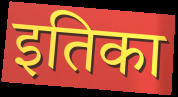
इतिका